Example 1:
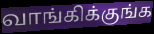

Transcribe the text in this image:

வாங்கிக்குங்க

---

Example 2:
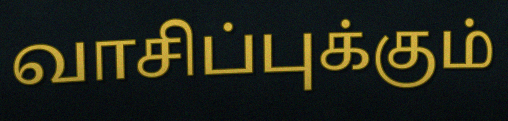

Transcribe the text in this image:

வாசிப்புக்கும்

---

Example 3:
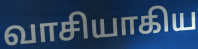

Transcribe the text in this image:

வாசியாகிய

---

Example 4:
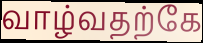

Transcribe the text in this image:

வாழ்வதற்கே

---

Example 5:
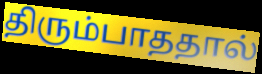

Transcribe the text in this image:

திரும்பாததால்